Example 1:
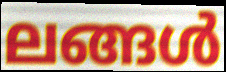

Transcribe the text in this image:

ലങ്ങൾ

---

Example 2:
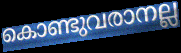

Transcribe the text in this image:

കൊണ്ടുവരാനല്ല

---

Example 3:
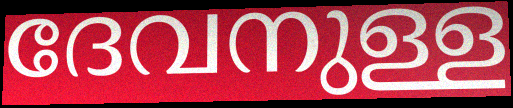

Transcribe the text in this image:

ദേവനുള്ള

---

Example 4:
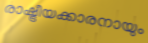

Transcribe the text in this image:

രാഷ്ട്രീയക്കാരനായും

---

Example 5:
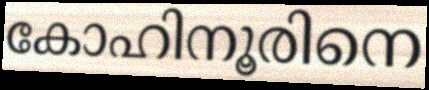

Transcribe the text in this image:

കോഹിനൂരിനെ